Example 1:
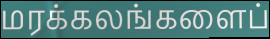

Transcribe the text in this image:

மரக்கலங்களைப்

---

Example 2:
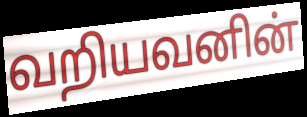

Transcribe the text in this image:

வறியவனின்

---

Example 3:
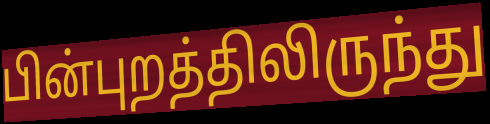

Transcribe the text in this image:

பின்புறத்திலிருந்து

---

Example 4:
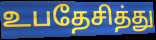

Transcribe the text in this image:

உபதேசித்து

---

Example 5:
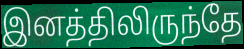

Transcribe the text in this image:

இனத்திலிருந்தே